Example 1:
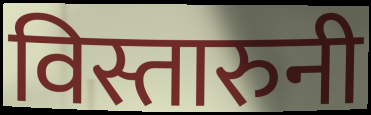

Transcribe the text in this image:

विस्तारुनी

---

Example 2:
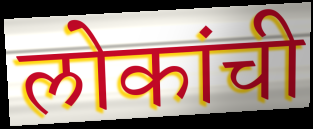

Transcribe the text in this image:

लोकांची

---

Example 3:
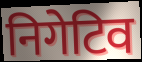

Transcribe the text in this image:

निगेटिव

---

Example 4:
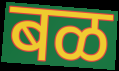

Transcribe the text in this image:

बळ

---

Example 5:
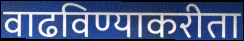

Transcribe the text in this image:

वाढविण्याकरीता